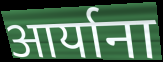
आर्याना